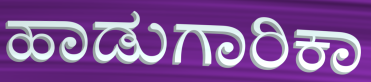
ಹಾಡುಗಾರಿಕಾ